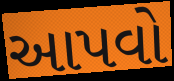
આપવો